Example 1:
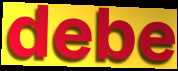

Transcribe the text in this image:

debe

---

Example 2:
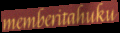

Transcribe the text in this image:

memberitahuku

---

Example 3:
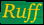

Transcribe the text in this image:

Ruff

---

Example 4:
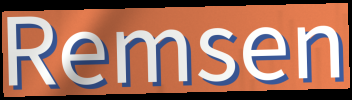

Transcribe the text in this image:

Remsen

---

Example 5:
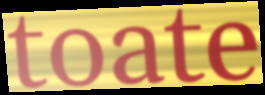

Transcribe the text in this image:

toate